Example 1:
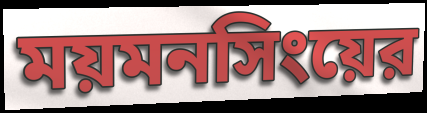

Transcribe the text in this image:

ময়মনসিংয়ের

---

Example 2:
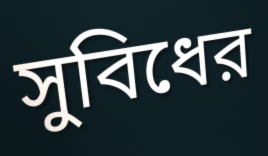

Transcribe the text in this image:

সুবিধের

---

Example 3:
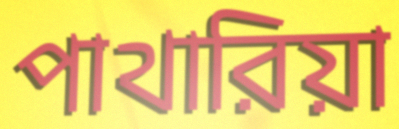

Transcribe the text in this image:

পাথারিয়া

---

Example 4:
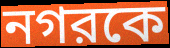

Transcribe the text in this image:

নগরকে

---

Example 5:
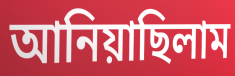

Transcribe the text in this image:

আনিয়াছিলাম